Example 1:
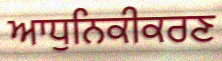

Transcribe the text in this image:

ਆਧੁਨਿਕੀਕਰਣ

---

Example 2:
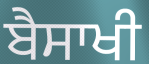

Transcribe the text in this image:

ਬੈਸਾਖੀ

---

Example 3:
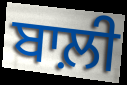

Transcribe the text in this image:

ਬਾਲ਼ੀ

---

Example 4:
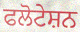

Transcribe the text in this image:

ਫਲੋਟੇਸ਼ਨ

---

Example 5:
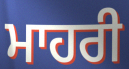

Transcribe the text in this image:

ਮਾਹਰੀ